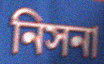
নিসনা